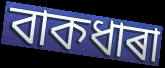
বাকধাৰা